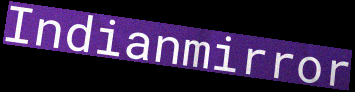
Indianmirror